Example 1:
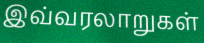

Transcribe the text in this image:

இவ்வரலாறுகள்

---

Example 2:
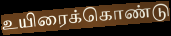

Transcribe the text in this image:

உயிரைக்கொண்டு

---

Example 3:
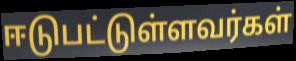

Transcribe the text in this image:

ஈடுபட்டுள்ளவர்கள்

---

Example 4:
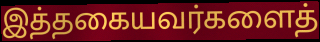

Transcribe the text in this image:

இத்தகையவர்களைத்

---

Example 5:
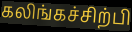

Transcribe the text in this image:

கலிங்கச்சிற்பி